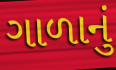
ગાળાનું